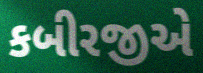
કબીરજીએ